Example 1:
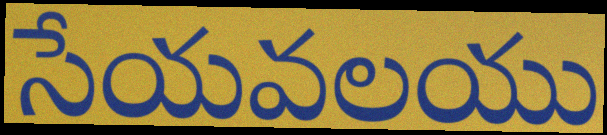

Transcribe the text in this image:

సేయవలయు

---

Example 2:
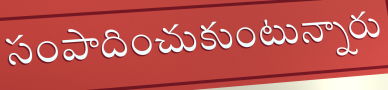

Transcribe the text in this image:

సంపాదించుకుంటున్నారు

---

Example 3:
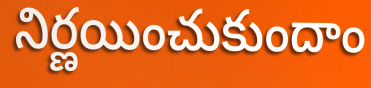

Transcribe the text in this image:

నిర్ణయించుకుందాం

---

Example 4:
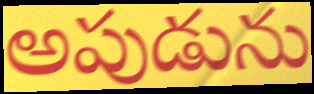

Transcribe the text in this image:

అపుడును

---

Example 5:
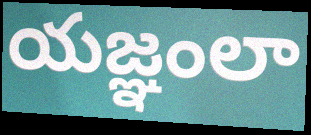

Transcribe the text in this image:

యజ్ఞంలా